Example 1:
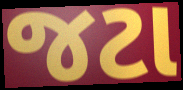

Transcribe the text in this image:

જટા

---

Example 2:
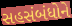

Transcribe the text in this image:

સહસંબંધોને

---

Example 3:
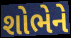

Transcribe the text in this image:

શોભેને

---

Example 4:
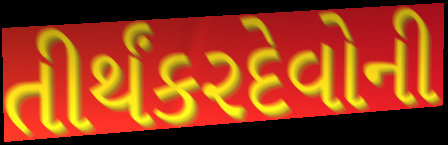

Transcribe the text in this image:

તીર્થંકરદેવોની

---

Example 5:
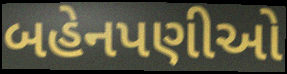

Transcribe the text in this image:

બહેનપણીઓ